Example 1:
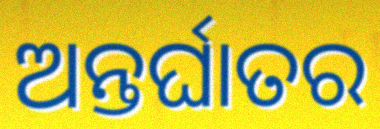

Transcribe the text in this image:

ଅନ୍ତର୍ଘାତର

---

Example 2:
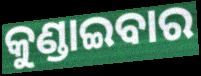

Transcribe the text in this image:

କୁଣ୍ଡାଇବାର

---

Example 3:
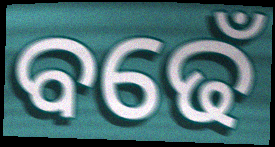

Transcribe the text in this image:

ବଢେଁ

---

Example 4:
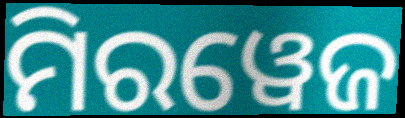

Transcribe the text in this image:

ମିରୱେଜ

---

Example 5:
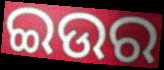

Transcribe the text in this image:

ଇଉର